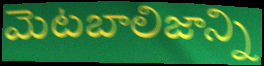
మెటబాలిజాన్ని